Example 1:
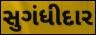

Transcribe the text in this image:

સુગંધીદાર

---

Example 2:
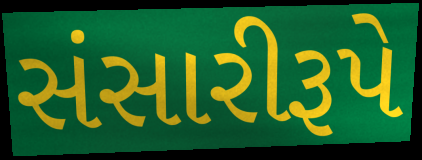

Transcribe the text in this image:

સંસારીરૂપે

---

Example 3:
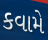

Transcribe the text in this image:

કવામે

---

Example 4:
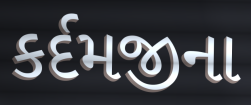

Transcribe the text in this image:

કર્દમજીના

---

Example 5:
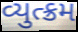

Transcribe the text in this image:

વ્યુત્ક્રમ